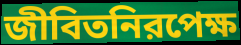
জীবিতনিরপেক্ষ